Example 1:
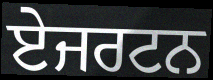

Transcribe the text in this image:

ਏਜਰਟਨ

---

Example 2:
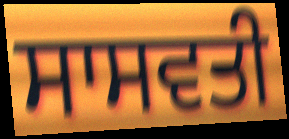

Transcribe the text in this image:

ਸਾਸਵਤੀ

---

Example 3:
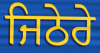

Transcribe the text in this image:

ਜਿਠੇਰੇ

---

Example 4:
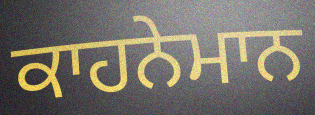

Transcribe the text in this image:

ਕਾਹਨੇਮਾਨ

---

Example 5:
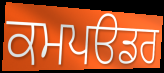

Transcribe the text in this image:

ਕਮਪੳਡਰ